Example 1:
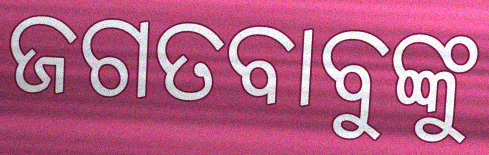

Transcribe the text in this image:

ଜଗତବାବୁଙ୍କୁ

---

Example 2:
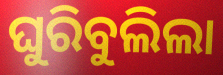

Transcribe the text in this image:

ଘୁରିବୁଲିଲା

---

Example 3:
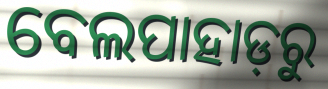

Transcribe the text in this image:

ବେଲପାହାଡ଼ରୁ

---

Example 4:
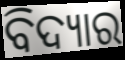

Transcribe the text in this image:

ବିଦ୍ୟାର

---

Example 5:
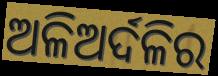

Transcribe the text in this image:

ଅଳିଅର୍ଦଳିର